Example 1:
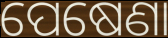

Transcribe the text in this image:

ପେଷେଣା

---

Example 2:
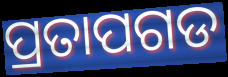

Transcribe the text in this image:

ପ୍ରତାପଗଡ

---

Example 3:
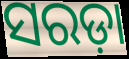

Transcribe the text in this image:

ସରଡ଼ା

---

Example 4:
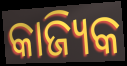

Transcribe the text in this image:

କାଜ୍ୟିକ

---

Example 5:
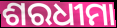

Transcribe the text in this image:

ଶରଧୀମା